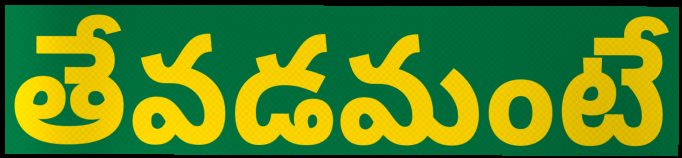
తేవడమంటే